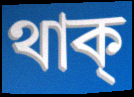
থাক্